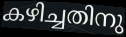
കഴിച്ചതിനു